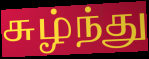
சுழ்ந்து